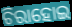
ଚିରାହୋଇ